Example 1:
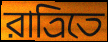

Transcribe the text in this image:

রাত্রিতে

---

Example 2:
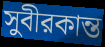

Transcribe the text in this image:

সুবীরকান্ত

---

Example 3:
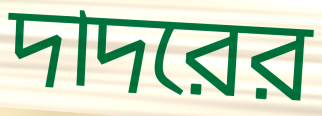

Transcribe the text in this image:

দাদরের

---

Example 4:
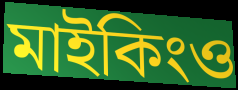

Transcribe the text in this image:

মাইকিংও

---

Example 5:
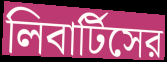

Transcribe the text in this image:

লিবার্টিসের